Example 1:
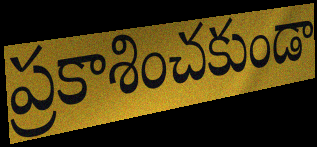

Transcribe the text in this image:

ప్రకాశించకుండా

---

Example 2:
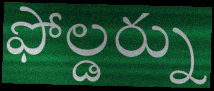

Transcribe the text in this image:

ఫోల్డర్ను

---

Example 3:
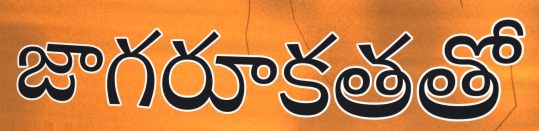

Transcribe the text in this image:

జాగరూకతతో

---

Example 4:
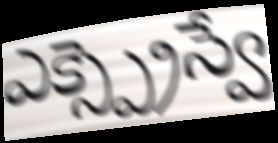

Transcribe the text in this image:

ఎక్స్ప్రెస్వే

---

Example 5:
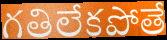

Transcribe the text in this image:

గతిలేకపోతే